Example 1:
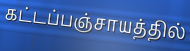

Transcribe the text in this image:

கட்டப்பஞ்சாயத்தில்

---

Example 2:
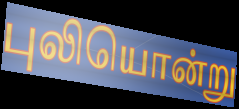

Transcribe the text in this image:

புலியொன்று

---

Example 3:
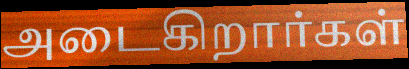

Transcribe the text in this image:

அடைகிறார்கள்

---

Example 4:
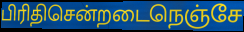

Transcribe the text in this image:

பிரிதிசென்றடைநெஞ்சே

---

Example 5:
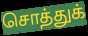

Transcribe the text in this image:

சொத்துக்